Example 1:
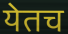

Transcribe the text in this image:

येतच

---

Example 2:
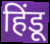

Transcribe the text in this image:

हिंडू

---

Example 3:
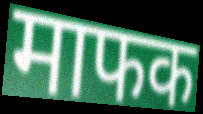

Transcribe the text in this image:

माफक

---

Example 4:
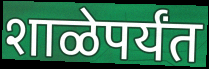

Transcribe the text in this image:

शाळेपर्यंत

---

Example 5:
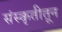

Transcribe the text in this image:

संस्कृतीतून